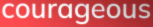
courageous